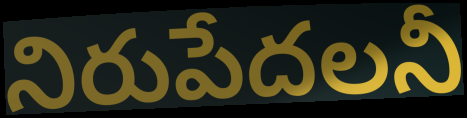
నిరుపేదలనీ